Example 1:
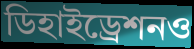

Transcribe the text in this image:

ডিহাইড্রেশনও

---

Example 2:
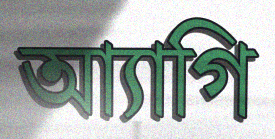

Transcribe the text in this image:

আ্যাগি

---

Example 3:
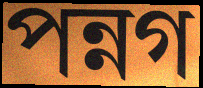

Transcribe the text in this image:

পন্নগ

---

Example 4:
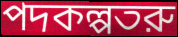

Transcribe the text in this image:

পদকল্পতরু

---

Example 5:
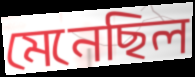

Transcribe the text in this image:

মেনেছিল